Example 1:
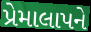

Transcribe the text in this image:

પ્રેમાલાપને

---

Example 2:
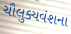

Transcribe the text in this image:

ચૌલુક્યવંશના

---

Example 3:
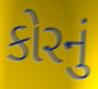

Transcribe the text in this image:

કોરનું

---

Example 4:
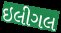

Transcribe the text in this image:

ઇલીગલ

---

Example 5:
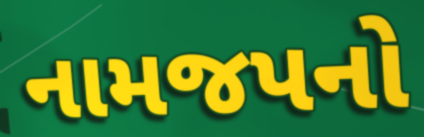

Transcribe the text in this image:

નામજપનો